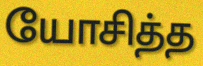
யோசித்த